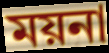
ময়না